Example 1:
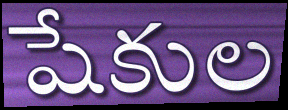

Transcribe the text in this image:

షేకుల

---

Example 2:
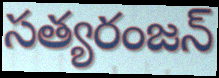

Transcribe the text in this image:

సత్యరంజన్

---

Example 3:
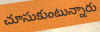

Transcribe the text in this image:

చూసుకుంటున్నారు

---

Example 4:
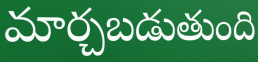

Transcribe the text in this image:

మార్చబడుతుంది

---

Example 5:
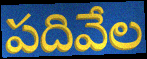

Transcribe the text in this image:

పదివేల